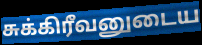
சுக்கிரீவனுடைய